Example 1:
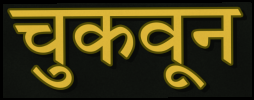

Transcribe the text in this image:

चुकवून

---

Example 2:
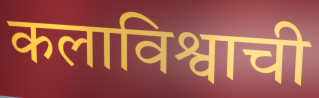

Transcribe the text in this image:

कलाविश्वाची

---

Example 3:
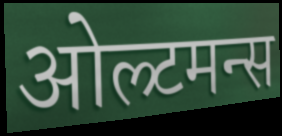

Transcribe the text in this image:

ओल्टमन्स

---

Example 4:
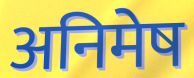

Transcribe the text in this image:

अनिमेष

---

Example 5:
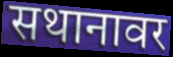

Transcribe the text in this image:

सथानावर